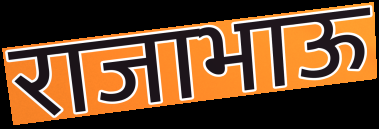
राजाभाऊ